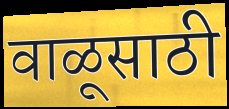
वाळूसाठी